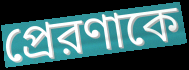
প্রেরণাকে